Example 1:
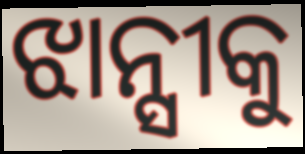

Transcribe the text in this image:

ଝାନ୍ସୀକୁ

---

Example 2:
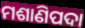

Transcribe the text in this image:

ମଶାଣିପଦା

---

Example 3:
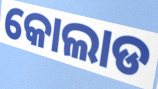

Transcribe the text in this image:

କୋଲାଡ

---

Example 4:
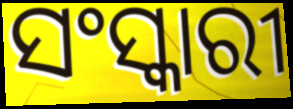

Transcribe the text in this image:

ସଂସ୍କାରୀ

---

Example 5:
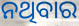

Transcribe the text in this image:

ନଥିବାର